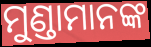
ମୁଣ୍ଡାମାନଙ୍କ